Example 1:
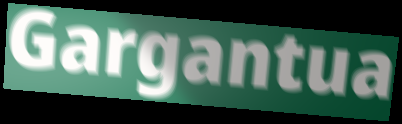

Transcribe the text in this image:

Gargantua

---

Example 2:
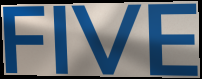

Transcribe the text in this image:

FIVE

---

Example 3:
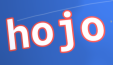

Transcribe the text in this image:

hojo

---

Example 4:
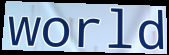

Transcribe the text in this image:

world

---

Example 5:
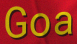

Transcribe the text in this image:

Goa